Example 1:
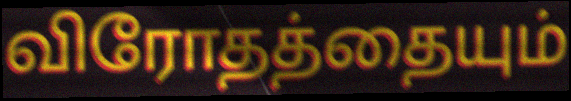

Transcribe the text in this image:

விரோதத்தையும்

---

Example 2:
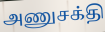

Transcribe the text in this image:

அணுசக்தி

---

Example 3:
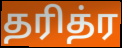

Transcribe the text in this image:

தரித்ர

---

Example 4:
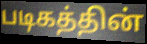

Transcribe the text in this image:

படிகத்தின்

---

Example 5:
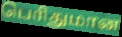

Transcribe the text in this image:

பெரிதுமான